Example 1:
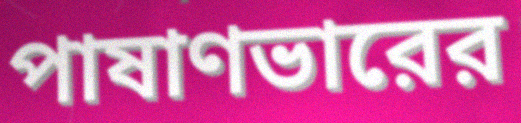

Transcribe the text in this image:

পাষাণভারের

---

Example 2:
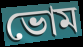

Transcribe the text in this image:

ভোম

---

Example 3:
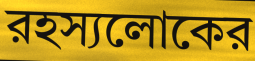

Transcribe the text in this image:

রহস্যলোকের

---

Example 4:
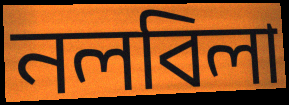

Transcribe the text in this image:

নলবিলা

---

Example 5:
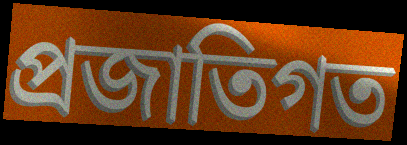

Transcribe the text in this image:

প্রজাতিগত